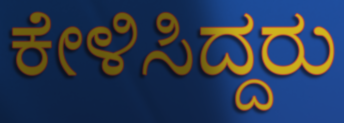
ಕೇಳಿಸಿದ್ದರು